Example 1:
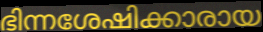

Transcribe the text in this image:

ഭിന്നശേഷിക്കാരായ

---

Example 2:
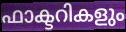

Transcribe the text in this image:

ഫാക്ടറികളും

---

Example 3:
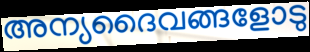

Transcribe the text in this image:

അന്യദൈവങ്ങളോടു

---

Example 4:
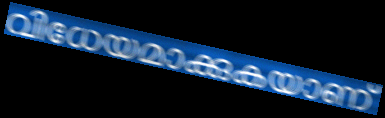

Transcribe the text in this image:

വിധേയമാക്കുകയാണ്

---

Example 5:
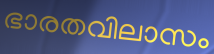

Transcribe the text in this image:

ഭാരതവിലാസം